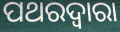
ପଥରଦ୍ୱାରା